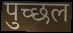
पुच्छल